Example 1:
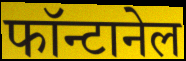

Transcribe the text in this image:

फॉन्टानेल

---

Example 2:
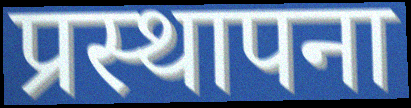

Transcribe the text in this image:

प्रस्थापना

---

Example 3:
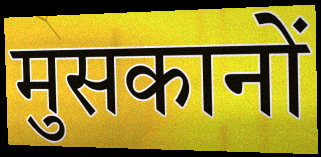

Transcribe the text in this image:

मुसकानों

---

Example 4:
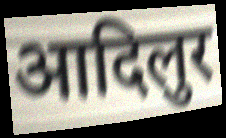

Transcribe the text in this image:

आदिलुर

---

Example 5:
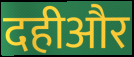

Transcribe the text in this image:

दहीऔर